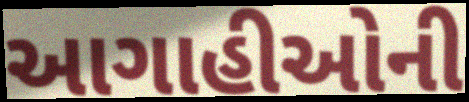
આગાહીઓની